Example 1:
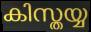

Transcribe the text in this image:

കിസ്തയ്യ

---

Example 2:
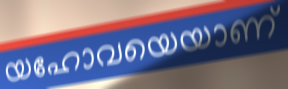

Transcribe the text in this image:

യഹോവയെയാണ്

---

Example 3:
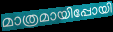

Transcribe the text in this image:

മാത്രമായിപ്പോയി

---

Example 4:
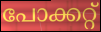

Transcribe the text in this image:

പോക്കറ്റ്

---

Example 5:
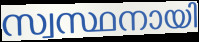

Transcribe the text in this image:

സ്വസ്ഥനായി